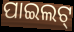
ପାଇଲଟ୍